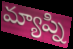
మ్యాప్ని